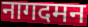
नागदमन